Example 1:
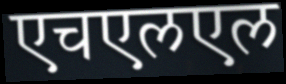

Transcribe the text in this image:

एचएलएल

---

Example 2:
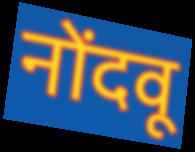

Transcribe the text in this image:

नोंदवू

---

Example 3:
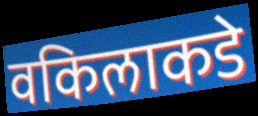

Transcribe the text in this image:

वकिलाकडे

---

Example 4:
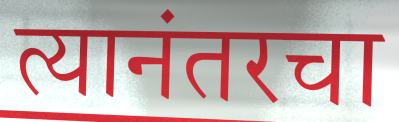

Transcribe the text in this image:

त्यानंतरचा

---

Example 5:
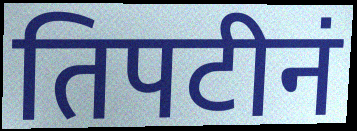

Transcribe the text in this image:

तिपटीनं